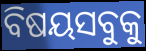
ବିଷୟସବୁକୁ